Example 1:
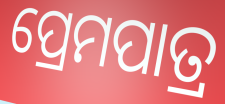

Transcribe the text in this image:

ପ୍ରେମପାତ୍ର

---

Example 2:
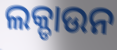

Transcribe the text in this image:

ଲକ୍ଡାଉନ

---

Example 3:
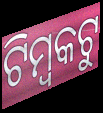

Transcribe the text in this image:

ଟିମ୍ବକଟୁ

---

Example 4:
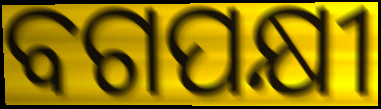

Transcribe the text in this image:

ବଗପକ୍ଷୀ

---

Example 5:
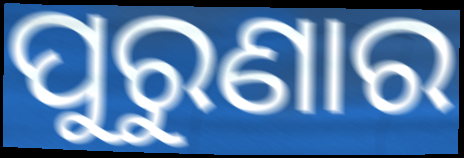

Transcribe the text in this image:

ପୁରୁଣାର